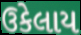
ઉકેલાય